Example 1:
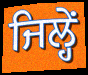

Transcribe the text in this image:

ਜਿਲ੍ਹੇਂ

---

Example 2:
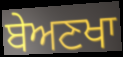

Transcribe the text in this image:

ਬੇਅਣਖਾ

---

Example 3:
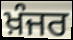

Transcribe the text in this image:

ਖ਼ੰਜਰ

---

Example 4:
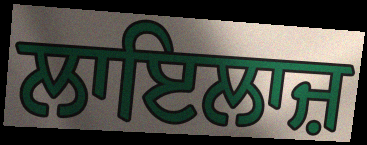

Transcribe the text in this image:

ਲਾਇਲਾਜ਼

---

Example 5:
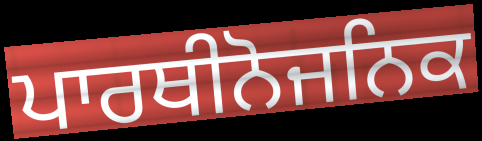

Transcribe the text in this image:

ਪਾਰਥੀਨੋਜਨਿਕ